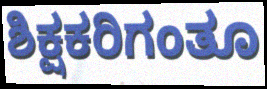
ಶಿಕ್ಷಕರಿಗಂತೂ